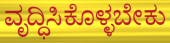
ವೃದ್ಧಿಸಿಕೊಳ್ಳಬೇಕು